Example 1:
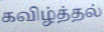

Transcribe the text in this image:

கவிழ்த்தல்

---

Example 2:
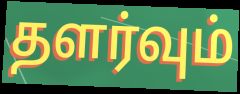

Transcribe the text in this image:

தளர்வும்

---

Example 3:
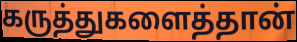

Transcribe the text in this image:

கருத்துகளைத்தான்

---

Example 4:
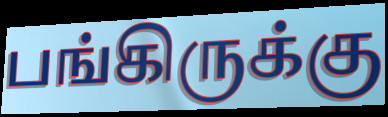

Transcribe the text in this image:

பங்கிருக்கு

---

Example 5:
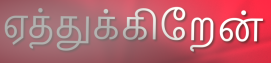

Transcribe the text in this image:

ஏத்துக்கிறேன்